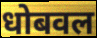
धोबवल